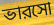
ভারসো